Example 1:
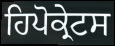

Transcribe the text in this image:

ਹਿਪੋਕ੍ਰੇਟਸ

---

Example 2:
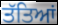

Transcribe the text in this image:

ਤੱਤਿਆਂ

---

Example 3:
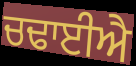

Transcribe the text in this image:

ਚਢਾਈਐ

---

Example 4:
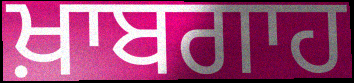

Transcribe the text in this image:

ਖ਼ਾਬਗਾਹ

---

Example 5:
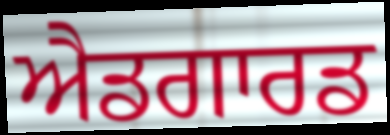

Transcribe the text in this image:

ਐਡਗਾਰਡ